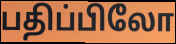
பதிப்பிலோ